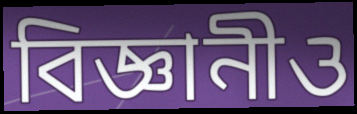
বিজ্ঞানীও